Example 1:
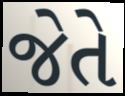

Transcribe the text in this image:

જેતે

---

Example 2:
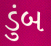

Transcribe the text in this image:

ડુંબ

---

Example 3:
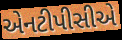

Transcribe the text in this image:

એનટીપીસીએ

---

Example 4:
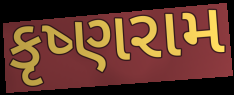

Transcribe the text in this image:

કૃષ્ણરામ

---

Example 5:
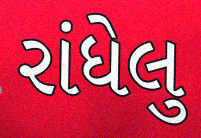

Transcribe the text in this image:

રાંધેલુ